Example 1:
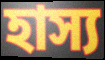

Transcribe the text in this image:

হাস্য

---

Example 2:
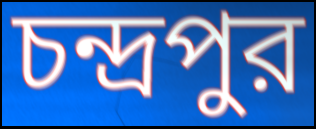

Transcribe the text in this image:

চন্দ্রপুর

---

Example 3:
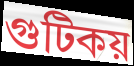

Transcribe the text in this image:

গুটিকয়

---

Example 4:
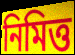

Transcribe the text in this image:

নিমিত্ত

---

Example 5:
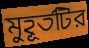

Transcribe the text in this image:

মুহূর্তটির